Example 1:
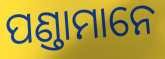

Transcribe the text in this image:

ପଣ୍ଡାମାନେ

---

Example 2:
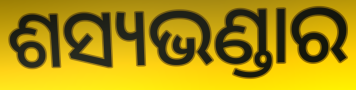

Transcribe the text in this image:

ଶସ୍ୟଭଣ୍ଡାର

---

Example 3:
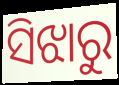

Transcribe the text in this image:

ସିଝାରୁ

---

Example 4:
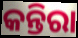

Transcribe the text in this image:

କନ୍ତିରା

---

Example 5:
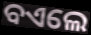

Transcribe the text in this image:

ବଏଲେ